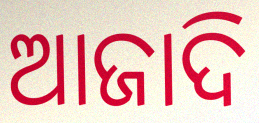
ଆଜାଦି